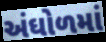
અંઘોળમાં